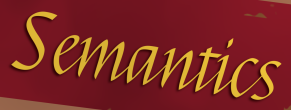
Semantics